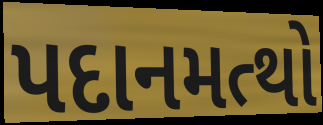
પદાનમત્થો